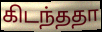
கிடந்ததா